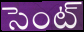
సెంట్